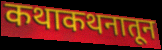
कथाकथनातून